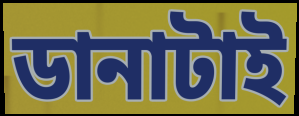
ডানাটাই